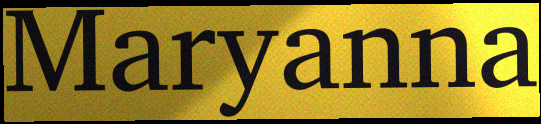
Maryanna